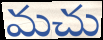
మచు